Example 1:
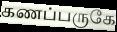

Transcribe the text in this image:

கணப்பருகே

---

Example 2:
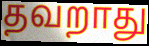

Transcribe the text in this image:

தவறாது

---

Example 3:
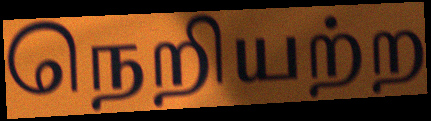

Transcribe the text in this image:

நெறியற்ற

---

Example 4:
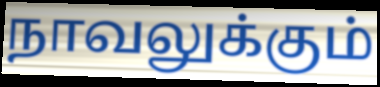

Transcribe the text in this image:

நாவலுக்கும்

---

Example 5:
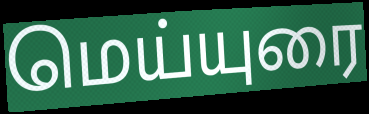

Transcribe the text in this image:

மெய்யுரை